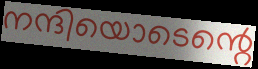
നന്ദിയൊടെന്റെ